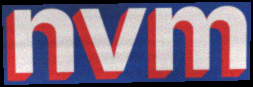
nvm